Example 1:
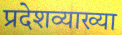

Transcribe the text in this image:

प्रदेशव्याख्या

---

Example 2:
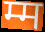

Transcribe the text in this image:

म्म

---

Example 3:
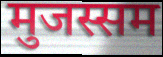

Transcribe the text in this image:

मुजस्सम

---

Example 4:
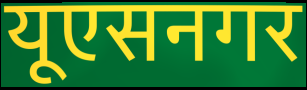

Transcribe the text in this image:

यूएसनगर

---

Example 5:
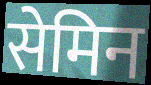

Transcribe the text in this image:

सेमिन